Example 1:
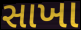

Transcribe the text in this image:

સાખા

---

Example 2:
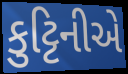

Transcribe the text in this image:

કુટ્ટિનીએ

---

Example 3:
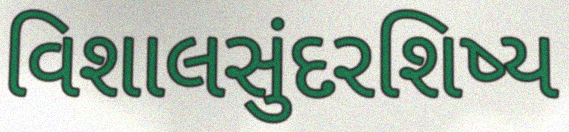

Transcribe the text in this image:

વિશાલસુંદરશિષ્ય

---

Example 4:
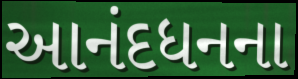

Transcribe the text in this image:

આનંદધનના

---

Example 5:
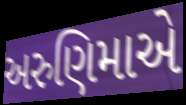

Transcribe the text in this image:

અરુણિમાએ